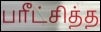
பரீட்சித்த